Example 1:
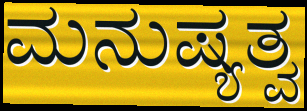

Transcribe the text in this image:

ಮನುಷ್ಯತ್ವ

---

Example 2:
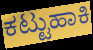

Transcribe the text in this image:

ಕಟ್ಟುಹಾಕಿ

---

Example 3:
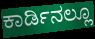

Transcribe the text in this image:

ಕಾರ್ಡಿನಲ್ಲೂ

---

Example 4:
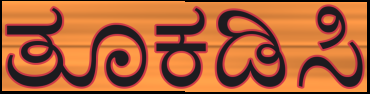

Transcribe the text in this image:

ತೂಕಡಿಸಿ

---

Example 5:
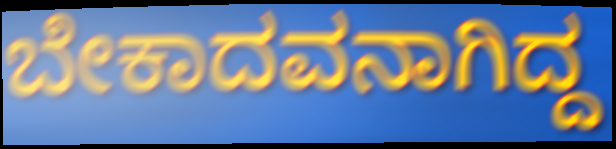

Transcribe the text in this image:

ಬೇಕಾದವನಾಗಿದ್ದ